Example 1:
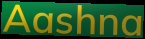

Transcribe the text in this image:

Aashna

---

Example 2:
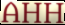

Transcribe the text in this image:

AHH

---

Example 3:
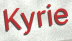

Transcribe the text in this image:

Kyrie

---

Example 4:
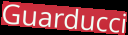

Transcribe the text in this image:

Guarducci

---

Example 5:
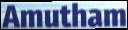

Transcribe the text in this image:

Amutham